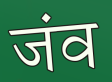
जंव